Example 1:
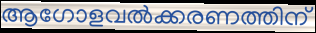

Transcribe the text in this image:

ആഗോളവൽക്കരണത്തിന്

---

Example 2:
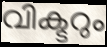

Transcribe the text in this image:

വിക്ടറും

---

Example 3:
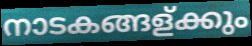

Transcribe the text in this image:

നാടകങ്ങള്ക്കും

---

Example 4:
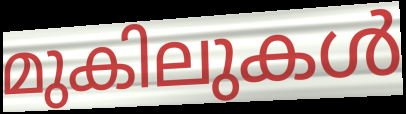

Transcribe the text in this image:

മുകിലുകൾ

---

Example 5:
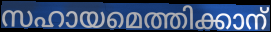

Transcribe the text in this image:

സഹായമെത്തിക്കാന്